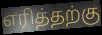
எரித்தற்கு